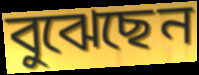
বুঝেছেন